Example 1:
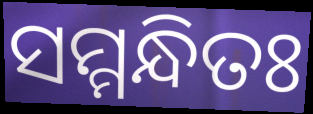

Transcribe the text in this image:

ସମ୍ମନ୍ଧିତଃ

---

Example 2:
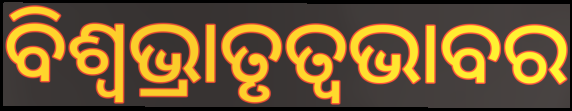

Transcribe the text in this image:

ବିଶ୍ଵଭ୍ରାତୃତ୍ୱଭାବର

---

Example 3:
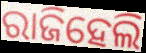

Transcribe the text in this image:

ରାଜିହେଲି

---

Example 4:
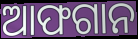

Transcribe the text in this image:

ଆଫଗାନ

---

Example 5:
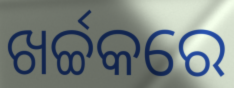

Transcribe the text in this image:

ଖର୍ଚ୍ଚକରେ